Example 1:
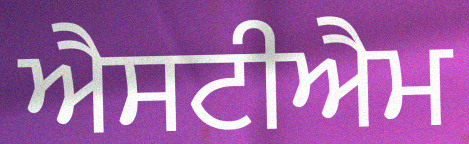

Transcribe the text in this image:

ਐਸਟੀਐਮ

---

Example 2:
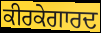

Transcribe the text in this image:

ਕੀਰਕੇਗਾਰਦ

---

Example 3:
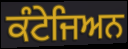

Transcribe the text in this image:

ਕੰਟੇਜਿਅਨ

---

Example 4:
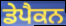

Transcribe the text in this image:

ਡੇਪੈਕਨ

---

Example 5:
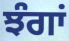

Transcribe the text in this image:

ਝੰਗਾਂ